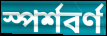
স্পৰ্শবৰ্ণ